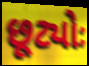
છૂટ્યોઃ